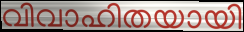
വിവാഹിതയായി